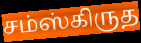
சம்ஸ்கிருத